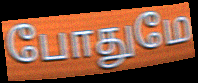
போதுமே